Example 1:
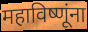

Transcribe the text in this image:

महाविष्णूंना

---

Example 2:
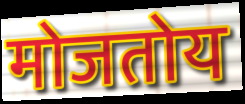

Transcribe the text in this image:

मोजतोय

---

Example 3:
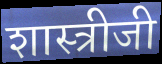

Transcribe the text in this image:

शास्त्रीजी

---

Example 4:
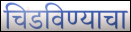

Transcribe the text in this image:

चिडविण्याचा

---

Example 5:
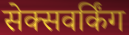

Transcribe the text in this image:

सेक्सवर्किंग